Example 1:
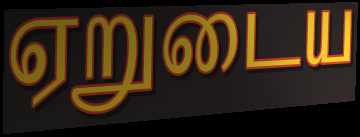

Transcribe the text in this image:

ஏறுடைய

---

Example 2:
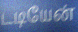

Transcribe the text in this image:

டடியேன்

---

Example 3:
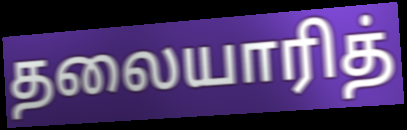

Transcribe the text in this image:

தலையாரித்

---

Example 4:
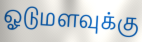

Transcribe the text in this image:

ஓடுமளவுக்கு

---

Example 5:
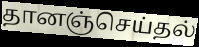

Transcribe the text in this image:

தானஞ்செய்தல்